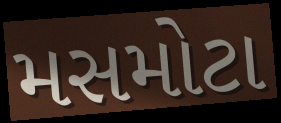
મસમોટા